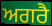
ਅਗਰੈ